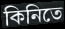
কিনিতে